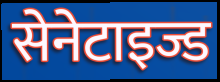
सेनेटाइज्ड